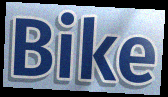
Bike